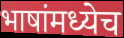
भाषांमध्येच